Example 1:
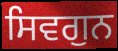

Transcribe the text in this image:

ਸਿਵਗੁਨ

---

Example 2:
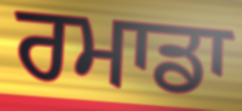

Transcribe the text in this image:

ਰਮਾਡਾ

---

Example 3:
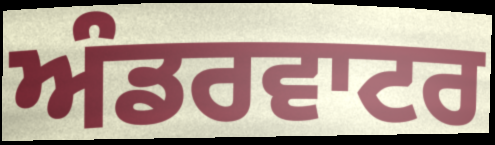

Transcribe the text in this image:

ਅੰਡਰਵਾਟਰ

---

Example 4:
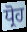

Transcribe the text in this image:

ਧ੍ਰੋਹ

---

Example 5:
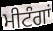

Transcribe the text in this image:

ਮੀਟੰਗਾਂ